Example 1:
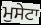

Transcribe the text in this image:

ਮੁਸੇਟਾ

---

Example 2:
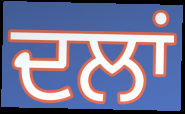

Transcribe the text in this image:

ਦਲਾਂ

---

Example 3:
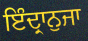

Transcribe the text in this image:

ਇੰਦ੍ਰਾਨੁਜਾ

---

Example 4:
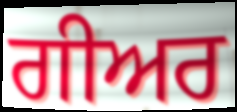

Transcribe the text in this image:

ਗੀਅਰ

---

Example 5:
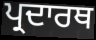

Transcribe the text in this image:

ਪ੍ਰਦਾਰਥ